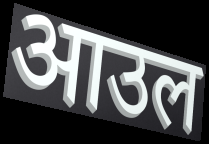
आउल